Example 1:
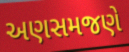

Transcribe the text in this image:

અણસમજણે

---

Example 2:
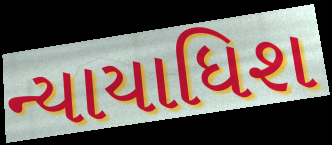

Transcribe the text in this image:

ન્યાયાધિશ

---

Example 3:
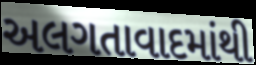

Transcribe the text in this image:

અલગતાવાદમાંથી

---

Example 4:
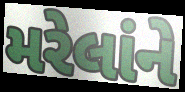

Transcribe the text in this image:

મરેલાંને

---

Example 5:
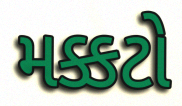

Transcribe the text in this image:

મક્કટો